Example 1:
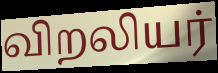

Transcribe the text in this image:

விறலியர்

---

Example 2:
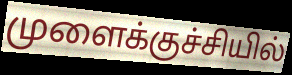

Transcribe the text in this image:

முளைக்குச்சியில்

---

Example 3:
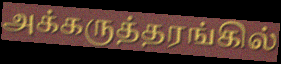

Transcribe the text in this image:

அக்கருத்தரங்கில்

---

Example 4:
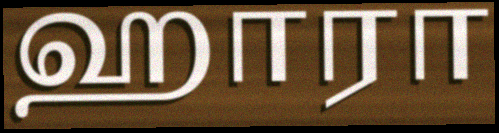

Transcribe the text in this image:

ஹாரா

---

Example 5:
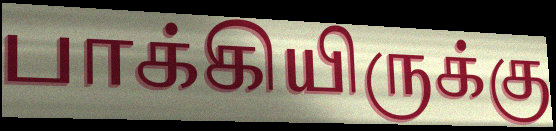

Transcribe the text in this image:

பாக்கியிருக்கு